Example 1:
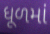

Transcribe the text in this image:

ધૂળમાં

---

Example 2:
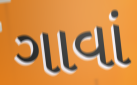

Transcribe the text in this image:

ગાવાં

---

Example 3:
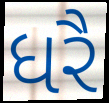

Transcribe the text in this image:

ધરૈ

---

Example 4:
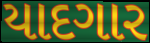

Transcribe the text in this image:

યાદગાર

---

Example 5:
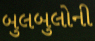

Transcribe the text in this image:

બુલબુલોની